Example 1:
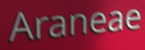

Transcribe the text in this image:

Araneae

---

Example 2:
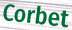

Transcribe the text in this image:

Corbet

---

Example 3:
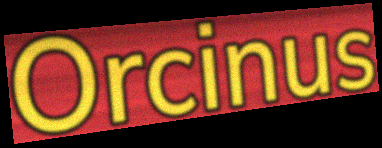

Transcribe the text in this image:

Orcinus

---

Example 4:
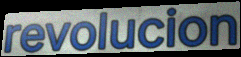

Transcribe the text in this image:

revolucion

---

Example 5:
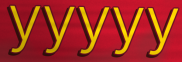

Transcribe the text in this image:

yyyyy